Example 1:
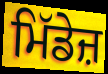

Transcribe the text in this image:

ਮਿੱਡੇਜ਼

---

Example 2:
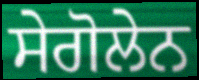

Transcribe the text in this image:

ਸੇਗੋਲੇਨ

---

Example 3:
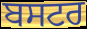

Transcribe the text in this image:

ਬਸਟਰ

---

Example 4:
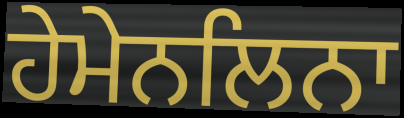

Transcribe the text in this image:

ਹੇਮੇਨਲਿਨਾ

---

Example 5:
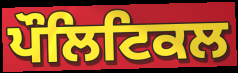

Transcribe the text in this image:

ਪੌਲਿਟਿਕਲ